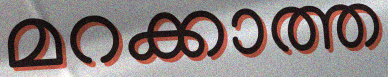
മറക്കാത്ത